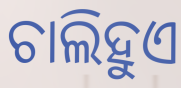
ଚାଲିହୁଏ